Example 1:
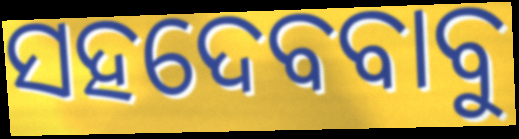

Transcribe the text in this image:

ସହଦେବବାବୁ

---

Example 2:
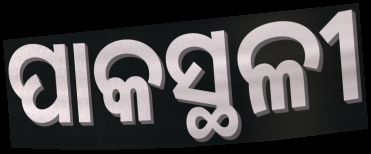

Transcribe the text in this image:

ପାକସ୍ଥଳୀ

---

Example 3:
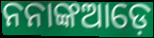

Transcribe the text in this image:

ନନାଙ୍କଆଡ଼େ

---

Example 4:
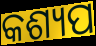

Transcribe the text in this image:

କଶ୍ୟପ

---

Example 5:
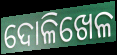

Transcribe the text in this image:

ଦୋଳିଖେଳ